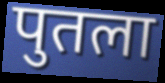
पुतला